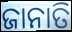
ଜାନାତି